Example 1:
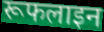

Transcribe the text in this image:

रूफलाइन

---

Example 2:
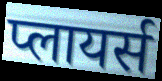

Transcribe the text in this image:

प्लायर्स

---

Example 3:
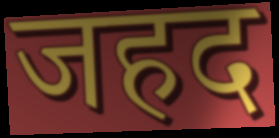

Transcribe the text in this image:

जहद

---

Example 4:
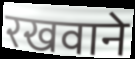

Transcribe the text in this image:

रखवाने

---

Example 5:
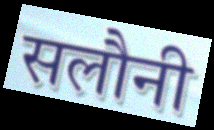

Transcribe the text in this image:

सलौनी